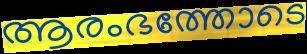
ആരംഭത്തോടെ